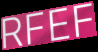
RFEF